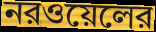
নরওয়েলের